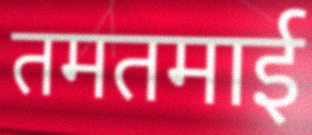
तमतमाई